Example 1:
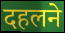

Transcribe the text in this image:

दहलने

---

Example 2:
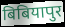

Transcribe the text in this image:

बिबियापुर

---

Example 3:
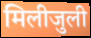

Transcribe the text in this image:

मिलीजुली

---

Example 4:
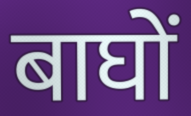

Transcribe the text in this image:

बाघों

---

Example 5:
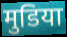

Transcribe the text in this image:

मुडिया